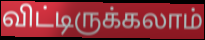
விட்டிருக்கலாம்